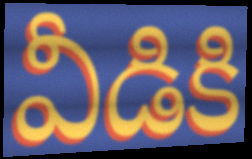
వీడికి